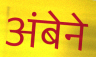
अंबेने